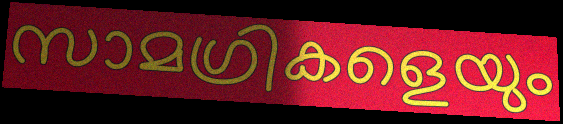
സാമഗ്രികളെയും